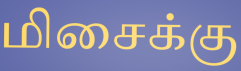
மிசைக்கு